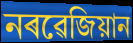
নৰৱেজিয়ান